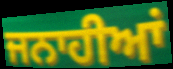
ਜਨਾਹੀਆਂ